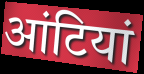
आंटियां